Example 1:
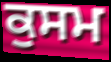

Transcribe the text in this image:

ਕੁਸਮ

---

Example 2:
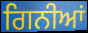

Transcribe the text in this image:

ਗਿਨੀਆਂ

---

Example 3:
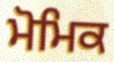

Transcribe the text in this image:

ਮੋਮਿਕ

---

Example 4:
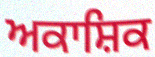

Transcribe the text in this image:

ਅਕਾਸ਼ਿਕ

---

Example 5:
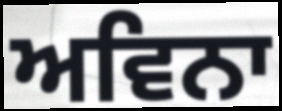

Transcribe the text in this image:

ਅਵਿਨਾ